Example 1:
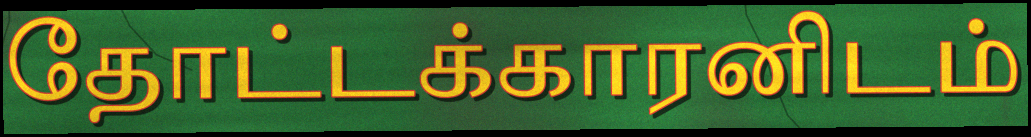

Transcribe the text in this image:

தோட்டக்காரனிடம்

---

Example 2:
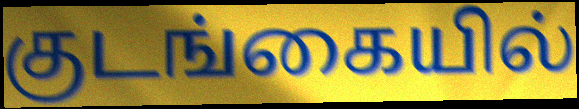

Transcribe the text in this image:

குடங்கையில்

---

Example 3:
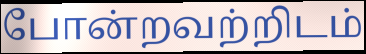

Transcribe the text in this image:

போன்றவற்றிடம்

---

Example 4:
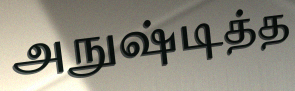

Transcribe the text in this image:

அநுஷ்டித்த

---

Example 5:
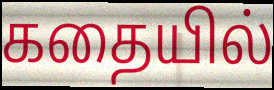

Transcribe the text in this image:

கதையில்